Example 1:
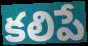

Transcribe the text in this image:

కలిపే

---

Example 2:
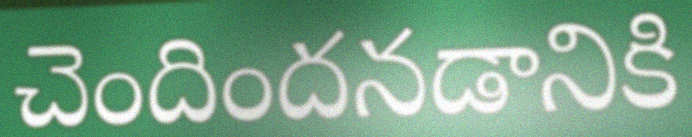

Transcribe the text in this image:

చెందిందనడానికి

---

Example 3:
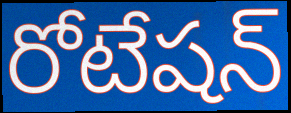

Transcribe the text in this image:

రోటేషన్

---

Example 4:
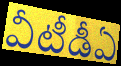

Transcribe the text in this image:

వీటీడీఏ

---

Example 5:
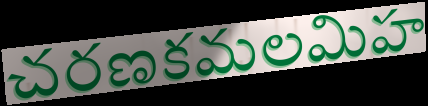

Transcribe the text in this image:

చరణకమలమిహ